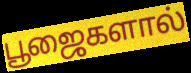
பூஜைகளால்